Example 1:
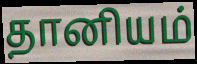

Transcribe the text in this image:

தானியம்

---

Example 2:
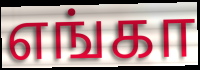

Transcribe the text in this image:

எங்கா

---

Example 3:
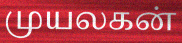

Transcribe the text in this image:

முயலகன்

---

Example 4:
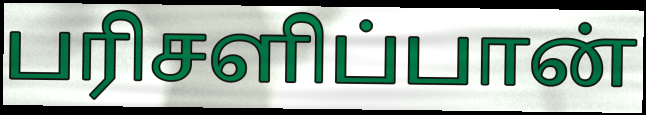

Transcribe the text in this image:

பரிசளிப்பான்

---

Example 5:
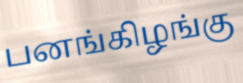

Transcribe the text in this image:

பனங்கிழங்கு